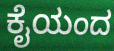
ಕೈಯಂದ